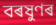
বৰষুণৰ